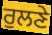
ਰੁਲਣੇ